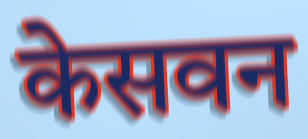
केसवन